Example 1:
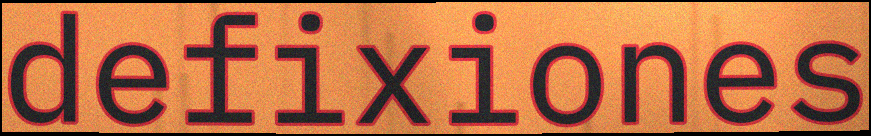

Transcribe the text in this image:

defixiones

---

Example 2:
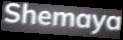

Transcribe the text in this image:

Shemaya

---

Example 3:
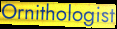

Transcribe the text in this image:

Ornithologist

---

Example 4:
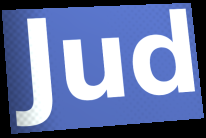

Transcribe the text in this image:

Jud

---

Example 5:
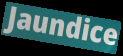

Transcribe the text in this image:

Jaundice